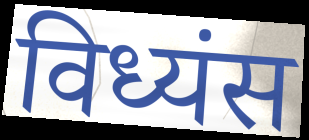
विध्यंस